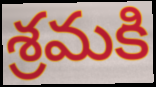
శ్రమకి